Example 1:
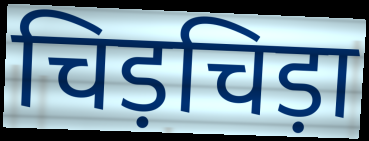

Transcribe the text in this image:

चिड़चिड़ा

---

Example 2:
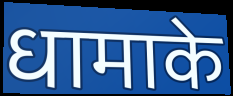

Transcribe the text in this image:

धामाके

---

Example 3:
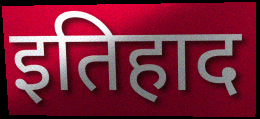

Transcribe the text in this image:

इतिहाद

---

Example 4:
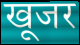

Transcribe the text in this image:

खूजर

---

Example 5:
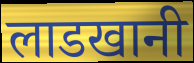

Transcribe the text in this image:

लाडखानी